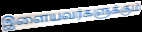
இளையவர்களுக்கும்